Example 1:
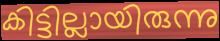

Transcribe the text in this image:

കിട്ടില്ലായിരുന്നു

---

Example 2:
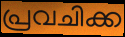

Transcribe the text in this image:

പ്രവചിക്ക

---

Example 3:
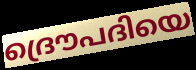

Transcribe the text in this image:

ദ്രൌപദിയെ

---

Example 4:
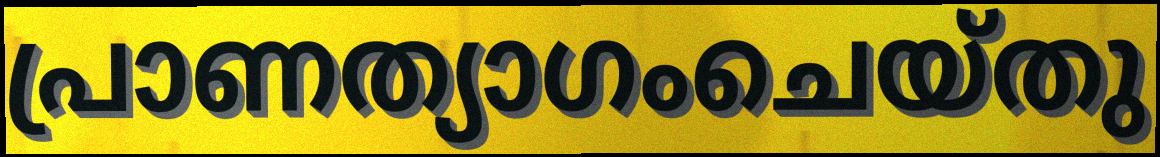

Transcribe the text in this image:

പ്രാണത്യാഗംചെയ്തു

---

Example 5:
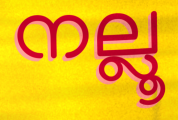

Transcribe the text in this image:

നല്ലൂ